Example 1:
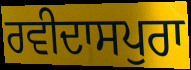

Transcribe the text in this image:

ਰਵੀਦਾਸਪੁਰਾ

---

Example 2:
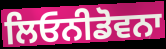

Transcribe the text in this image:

ਲਿਓਨੀਡੋਵਨਾ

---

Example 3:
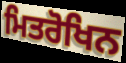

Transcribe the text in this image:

ਮਿਤਰੋਖਿਨ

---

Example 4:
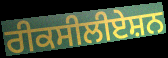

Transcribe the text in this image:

ਰੀਕਸੀਲੀਏਸ਼ਨ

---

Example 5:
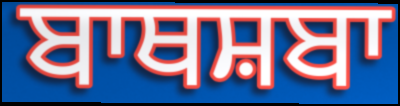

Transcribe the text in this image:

ਬਾਥਸ਼ਬਾ